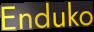
Enduko